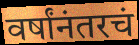
वर्षांनंतरचं